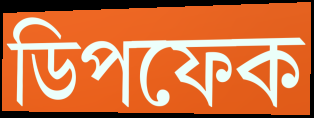
ডিপফেক